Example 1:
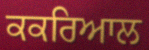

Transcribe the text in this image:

ਕਕਰਿਆਲ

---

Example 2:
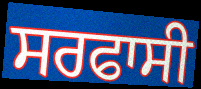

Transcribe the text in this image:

ਸਰਫਾਸੀ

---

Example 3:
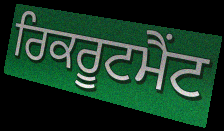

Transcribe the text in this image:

ਰਿਕਰੂਟਮੈਂਟ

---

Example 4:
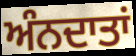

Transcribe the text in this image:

ਅੰਨਦਾਤਾਂ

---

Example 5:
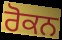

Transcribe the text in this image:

ਰੋਕਨ